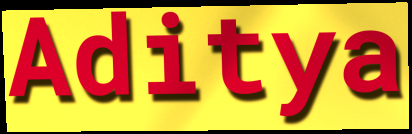
Aditya